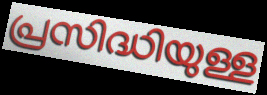
പ്രസിദ്ധിയുള്ള